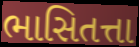
ભાસિતત્તા